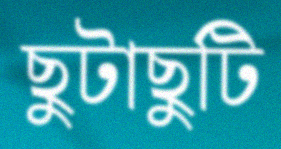
ছুটাছুটি